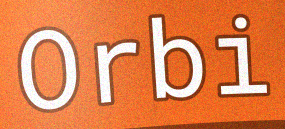
Orbi